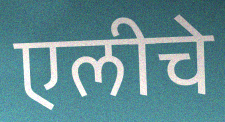
एलीचे